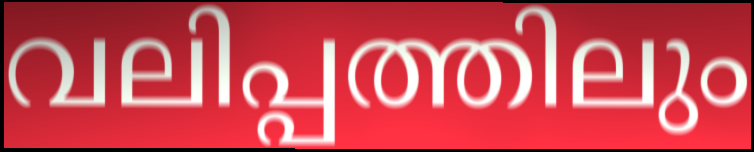
വലിപ്പത്തിലും